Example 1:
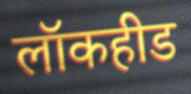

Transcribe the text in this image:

लॉकहीड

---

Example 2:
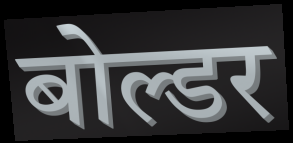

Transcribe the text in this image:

बोल्डर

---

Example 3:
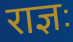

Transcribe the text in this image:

राज्ञः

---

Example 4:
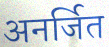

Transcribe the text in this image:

अनर्जित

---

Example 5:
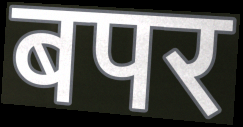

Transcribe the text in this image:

बपर